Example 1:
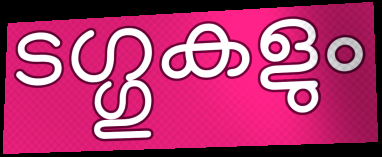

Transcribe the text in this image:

ടഗ്ഗുകളും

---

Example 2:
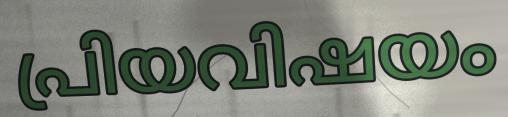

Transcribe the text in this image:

പ്രിയവിഷയം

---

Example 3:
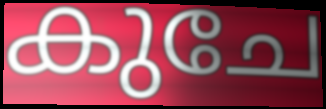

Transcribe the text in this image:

കുചേ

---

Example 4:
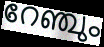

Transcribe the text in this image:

റേഞ്ചും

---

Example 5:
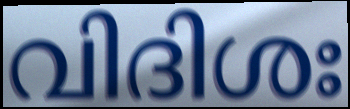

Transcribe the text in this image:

വിദിശഃ